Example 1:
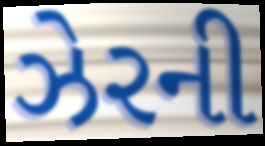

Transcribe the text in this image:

ઝેરની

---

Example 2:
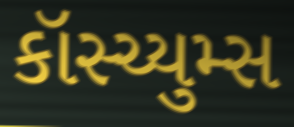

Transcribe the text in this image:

કૉસ્ચ્યુમ્સ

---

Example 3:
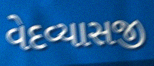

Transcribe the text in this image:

વેદવ્યાસજી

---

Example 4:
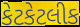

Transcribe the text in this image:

કેટકેટલીક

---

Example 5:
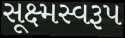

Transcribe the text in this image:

સૂક્ષ્મસ્વરૂપ